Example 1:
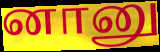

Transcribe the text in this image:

னானு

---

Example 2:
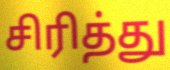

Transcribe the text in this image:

சிரித்து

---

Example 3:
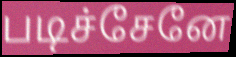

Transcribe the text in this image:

படிச்சேனே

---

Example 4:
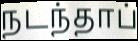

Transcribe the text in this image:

நடந்தாப்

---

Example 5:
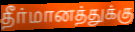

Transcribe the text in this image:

தீர்மானத்துக்கு